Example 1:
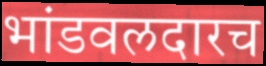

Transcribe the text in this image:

भांडवलदारच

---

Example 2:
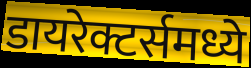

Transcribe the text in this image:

डायरेक्टर्समध्ये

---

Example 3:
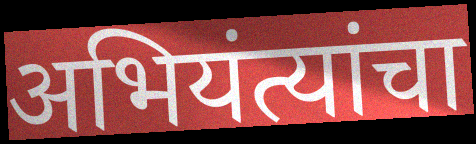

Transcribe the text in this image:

अभियंत्यांचा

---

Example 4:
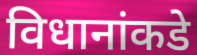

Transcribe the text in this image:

विधानांकडे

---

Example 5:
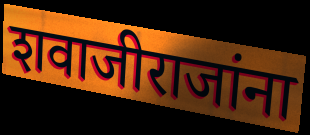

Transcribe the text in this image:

शवाजीराजांना